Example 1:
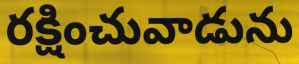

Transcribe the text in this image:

రక్షించువాడును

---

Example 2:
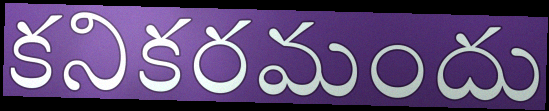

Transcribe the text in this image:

కనికరమందు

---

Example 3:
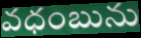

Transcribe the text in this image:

వధంబును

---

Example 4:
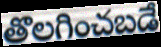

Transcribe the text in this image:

తొలగించబడే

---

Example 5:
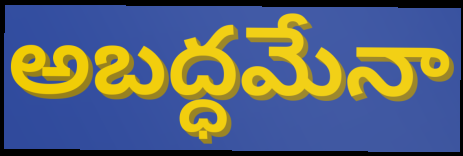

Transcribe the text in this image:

అబద్ధమేనా